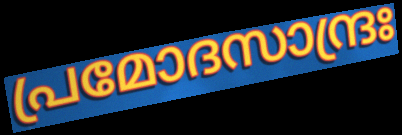
പ്രമോദസാന്ദ്രഃ